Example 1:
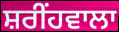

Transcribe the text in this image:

ਸ਼ਰੀਂਹਵਾਲਾ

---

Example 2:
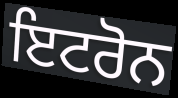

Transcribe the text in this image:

ਇਟਰੋਨ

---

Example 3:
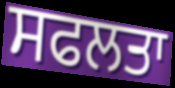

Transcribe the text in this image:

ਸਫਲਤਾ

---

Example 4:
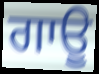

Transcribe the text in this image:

ਗਾਊ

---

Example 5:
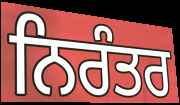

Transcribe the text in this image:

ਨਿਰੰਤਰ